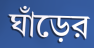
ঘাঁড়ের